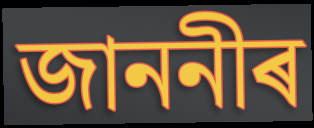
জাননীৰ